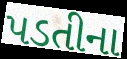
પડતીના